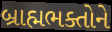
બ્રાહ્મભક્તોને